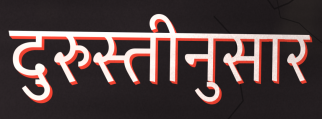
दुरुस्तीनुसार